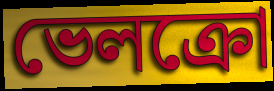
ভেলক্রো